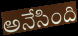
అనేసింది